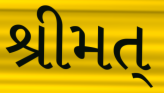
શ્રીમત્